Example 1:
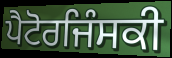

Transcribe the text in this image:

ਪੈਟੋਰਜਿੰਸਕੀ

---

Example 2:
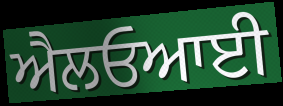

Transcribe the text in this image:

ਐਲਓਆਈ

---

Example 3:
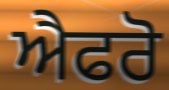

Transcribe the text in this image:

ਐਫਰੋ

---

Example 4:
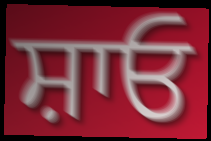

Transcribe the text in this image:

ਸ਼ਾਓ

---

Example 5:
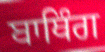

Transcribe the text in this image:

ਬਾਥਿੰਗ